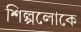
শিল্পলোকে